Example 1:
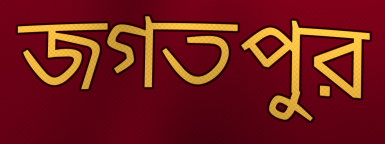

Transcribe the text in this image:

জগতপুর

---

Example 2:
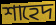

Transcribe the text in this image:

শাহেদ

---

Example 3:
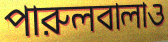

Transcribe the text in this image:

পারুলবালাও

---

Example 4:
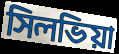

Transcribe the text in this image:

সিলভিয়া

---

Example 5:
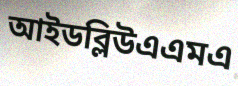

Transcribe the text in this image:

আইডব্লিউএএমএ